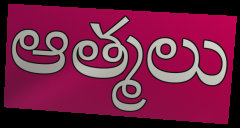
ఆత్మలు